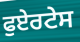
ਫੁਏਰਟੇਸ